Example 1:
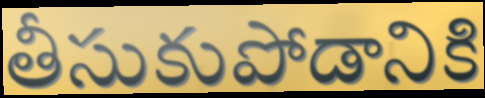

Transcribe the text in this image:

తీసుకుపోడానికి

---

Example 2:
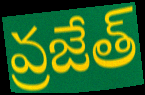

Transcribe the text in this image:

వ్రజేత్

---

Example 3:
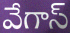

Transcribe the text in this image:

వేగాస్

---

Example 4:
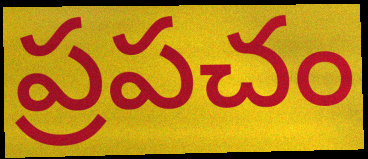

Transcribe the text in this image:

ప్రపచం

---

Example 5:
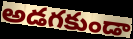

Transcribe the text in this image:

అడగకుండా